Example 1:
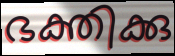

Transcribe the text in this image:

ഭക്തിക്കു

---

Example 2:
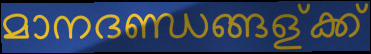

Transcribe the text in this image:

മാനദണ്ഡങ്ങള്ക്ക്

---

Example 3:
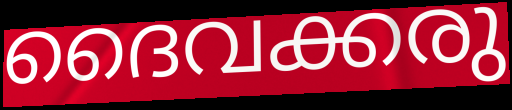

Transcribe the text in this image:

ദൈവക്കരു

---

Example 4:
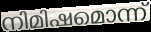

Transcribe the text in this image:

നിമിഷമൊന്ന്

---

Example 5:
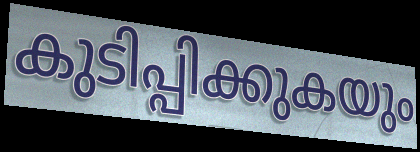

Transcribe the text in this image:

കുടിപ്പിക്കുകയും